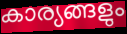
കാര്യങ്ങളും